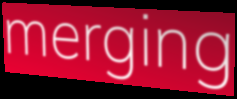
merging